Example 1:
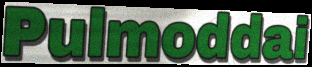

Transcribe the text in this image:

Pulmoddai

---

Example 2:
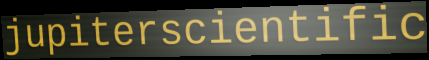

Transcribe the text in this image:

jupiterscientific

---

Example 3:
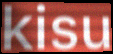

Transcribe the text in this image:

kisu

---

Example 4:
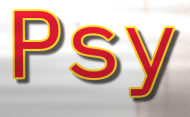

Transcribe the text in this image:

Psy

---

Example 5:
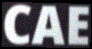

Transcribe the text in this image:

CAE